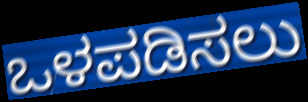
ಒಳಪಡಿಸಲು